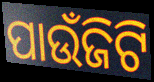
ପାଉଁଜିଟି